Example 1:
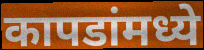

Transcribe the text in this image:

कापडांमध्ये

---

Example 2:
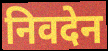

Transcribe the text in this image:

निवदेन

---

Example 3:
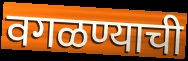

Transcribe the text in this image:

वगळण्याची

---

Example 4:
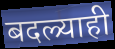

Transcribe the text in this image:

बदल्याही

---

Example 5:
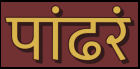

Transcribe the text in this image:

पांढरं